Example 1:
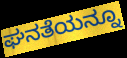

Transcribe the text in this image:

ಘನತೆಯನ್ನೂ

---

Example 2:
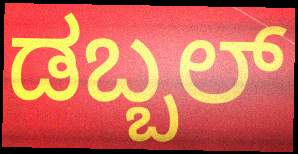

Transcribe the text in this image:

ಡಬ್ಬಲ್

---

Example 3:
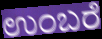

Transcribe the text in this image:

ಉಂಬರೆ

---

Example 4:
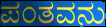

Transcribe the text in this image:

ಪಂತವನು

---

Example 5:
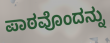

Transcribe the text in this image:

ಪಾಠವೊಂದನ್ನು